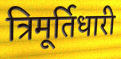
त्रिमूर्तिधारी